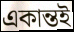
একান্তই